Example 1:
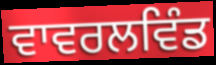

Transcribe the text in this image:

ਵਾਵਰਲਵਿੰਡ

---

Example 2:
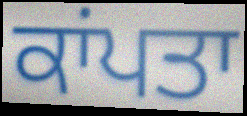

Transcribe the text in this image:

ਕਾਂਪਤਾ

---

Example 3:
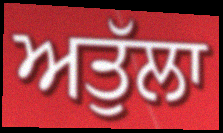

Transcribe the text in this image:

ਅਤੁੱਲਾ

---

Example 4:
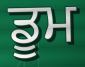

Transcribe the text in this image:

ਡੂਮ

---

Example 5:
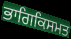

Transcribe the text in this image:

ਭਾਗਿਕਿਸਮਤ